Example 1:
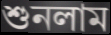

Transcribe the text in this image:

শুনলাম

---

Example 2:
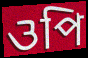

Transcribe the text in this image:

ওপি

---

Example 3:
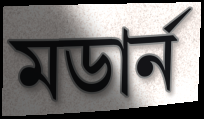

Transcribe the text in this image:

মডার্ন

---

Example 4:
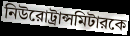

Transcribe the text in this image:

নিউরোট্রান্সমিটারকে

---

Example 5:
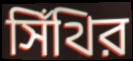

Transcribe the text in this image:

সিঁথির